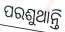
ପରଶୁଥାନ୍ତି